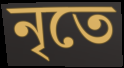
নৃতে